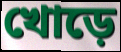
খোড়ে